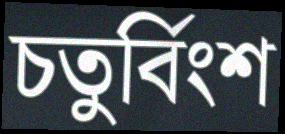
চতুৰ্বিংশ